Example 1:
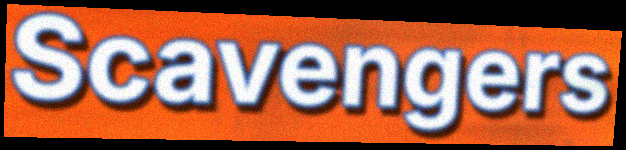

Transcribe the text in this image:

Scavengers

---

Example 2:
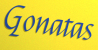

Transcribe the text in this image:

Gonatas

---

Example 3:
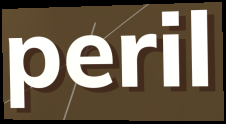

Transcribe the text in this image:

peril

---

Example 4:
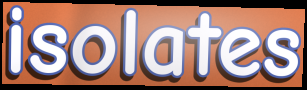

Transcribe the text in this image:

isolates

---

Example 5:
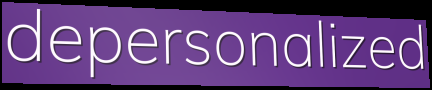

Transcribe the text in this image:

depersonalized